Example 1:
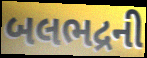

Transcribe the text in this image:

બલભદ્રની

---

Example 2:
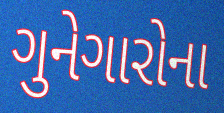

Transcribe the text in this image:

ગુનેગારોના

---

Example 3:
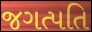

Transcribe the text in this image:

જગત્પતિ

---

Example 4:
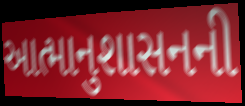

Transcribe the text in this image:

આત્માનુશાસનની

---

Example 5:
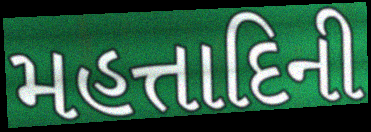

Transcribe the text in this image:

મહત્તાદિની